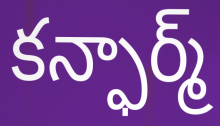
కన్ఫార్మ్